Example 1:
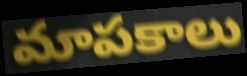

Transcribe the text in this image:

మాపకాలు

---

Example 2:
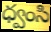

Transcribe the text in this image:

ధ్వంసి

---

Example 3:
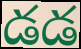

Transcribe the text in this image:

డడ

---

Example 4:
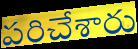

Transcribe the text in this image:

పరిచేశారు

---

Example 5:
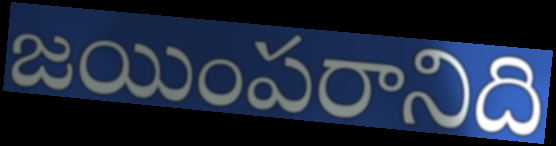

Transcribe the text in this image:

జయింపరానిది